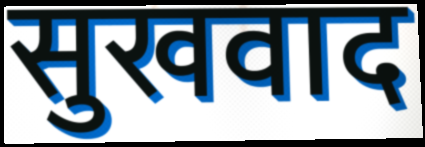
सुखवाद